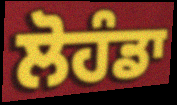
ਲੋਹੰਡਾ